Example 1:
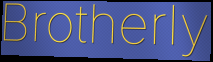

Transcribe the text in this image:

Brotherly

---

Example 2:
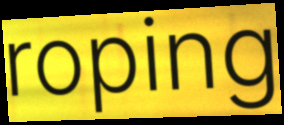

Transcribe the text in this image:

roping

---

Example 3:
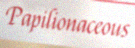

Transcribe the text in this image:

Papilionaceous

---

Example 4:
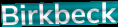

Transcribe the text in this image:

Birkbeck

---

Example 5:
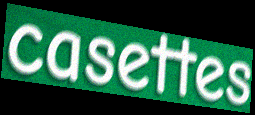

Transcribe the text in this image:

casettes